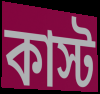
কাস্ট